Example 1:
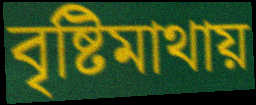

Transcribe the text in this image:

বৃষ্টিমাথায়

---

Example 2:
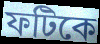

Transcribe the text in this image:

ফটিকে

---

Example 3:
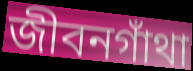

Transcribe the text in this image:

জীবনগাঁথা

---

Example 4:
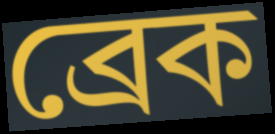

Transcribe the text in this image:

ব্রেক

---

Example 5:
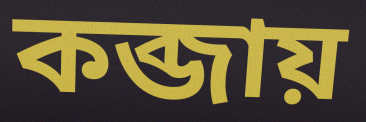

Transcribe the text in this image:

কব্জায়